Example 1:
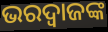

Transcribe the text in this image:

ଭରଦ୍ବାଜଙ୍କ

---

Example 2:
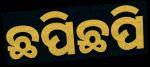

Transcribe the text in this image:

ଛପିଛପି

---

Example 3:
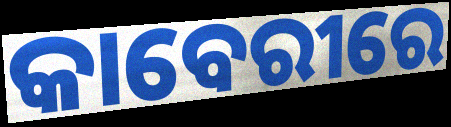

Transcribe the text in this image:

କାବେରୀରେ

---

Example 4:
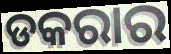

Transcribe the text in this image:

ଡକରାର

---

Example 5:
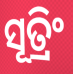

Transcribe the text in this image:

ସୂତ୍ରିଂ